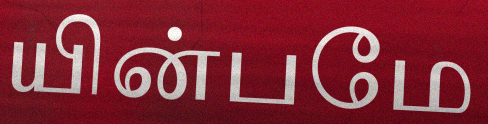
யின்பமே